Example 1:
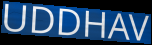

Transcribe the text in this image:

UDDHAV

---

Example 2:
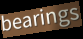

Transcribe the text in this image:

bearings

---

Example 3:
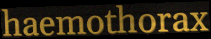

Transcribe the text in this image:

haemothorax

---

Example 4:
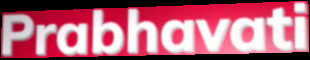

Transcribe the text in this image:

Prabhavati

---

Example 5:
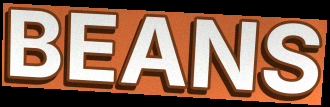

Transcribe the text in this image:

BEANS